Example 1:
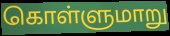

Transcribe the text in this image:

கொள்ளுமாறு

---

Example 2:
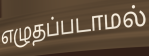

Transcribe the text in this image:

எழுதப்படாமல்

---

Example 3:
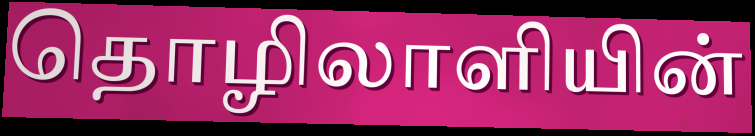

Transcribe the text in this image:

தொழிலாளியின்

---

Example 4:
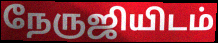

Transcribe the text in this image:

நேருஜியிடம்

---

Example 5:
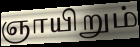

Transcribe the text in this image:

ஞாயிறும்